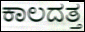
ಕಾಲದತ್ತ